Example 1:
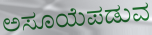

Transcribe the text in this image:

ಅಸೂಯೆಪಡುವ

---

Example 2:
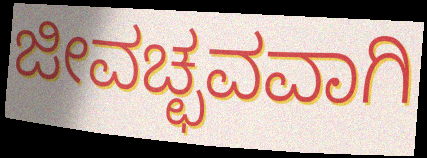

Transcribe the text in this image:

ಜೀವಚ್ಛವವಾಗಿ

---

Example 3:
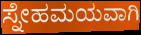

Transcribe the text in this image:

ಸ್ನೇಹಮಯವಾಗಿ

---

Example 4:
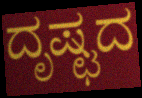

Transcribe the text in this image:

ದೃಷ್ಟದ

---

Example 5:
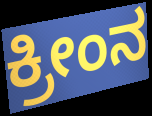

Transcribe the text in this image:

ಕ್ರೀಂನ